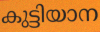
കുട്ടിയാന